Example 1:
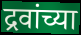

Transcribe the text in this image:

द्रवांच्या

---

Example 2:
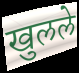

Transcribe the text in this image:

खुलले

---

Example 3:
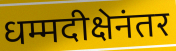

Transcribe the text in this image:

धम्मदीक्षेनंतर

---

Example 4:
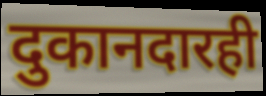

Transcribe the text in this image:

दुकानदारही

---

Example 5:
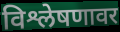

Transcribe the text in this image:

विश्लेषणावर